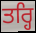
ਤਰ੍ਹਿ